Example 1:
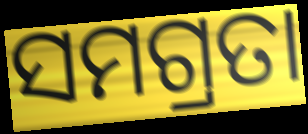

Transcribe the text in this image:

ସମଗ୍ରତା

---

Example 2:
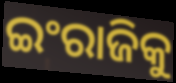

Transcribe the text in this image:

ଇଂରାଜିକୁ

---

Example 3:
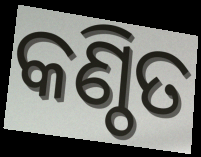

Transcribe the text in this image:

କଣ୍ଠିତ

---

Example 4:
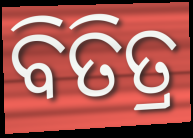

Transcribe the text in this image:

ବିତିତ୍ର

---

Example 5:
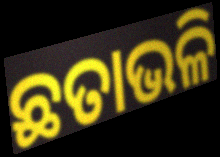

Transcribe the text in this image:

ଛତାଭଳି